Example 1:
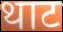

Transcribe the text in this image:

थाट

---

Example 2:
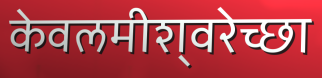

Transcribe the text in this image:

केवलमीश्वरेच्छा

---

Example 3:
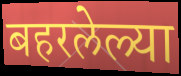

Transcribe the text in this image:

बहरलेल्या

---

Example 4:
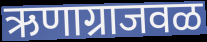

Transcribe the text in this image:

ऋणाग्राजवळ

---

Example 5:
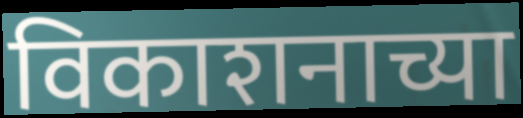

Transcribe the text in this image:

विकाशनाच्या